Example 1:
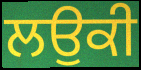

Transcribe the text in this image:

ਲਉਕੀ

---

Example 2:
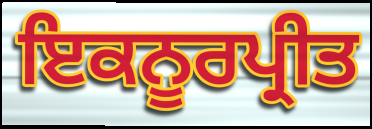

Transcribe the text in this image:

ਇਕਨੂਰਪ੍ਰੀਤ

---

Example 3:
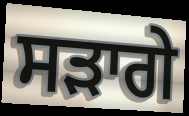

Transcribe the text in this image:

ਸੜਾਗੇ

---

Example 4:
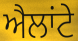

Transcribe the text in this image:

ਐਲਾਂਟੇ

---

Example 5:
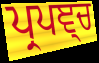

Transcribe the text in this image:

ਪ੍ਰਪਞ੍ਚ